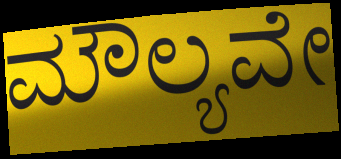
ಮೌಲ್ಯವೇ